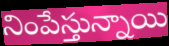
నింపేస్తున్నాయి